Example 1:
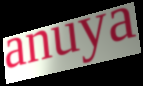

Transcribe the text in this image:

anuya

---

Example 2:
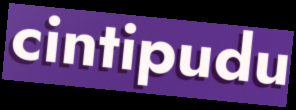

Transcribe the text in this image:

cintipudu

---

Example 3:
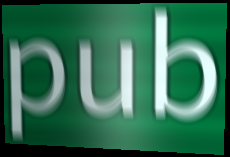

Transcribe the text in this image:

pub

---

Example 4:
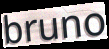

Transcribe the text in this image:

bruno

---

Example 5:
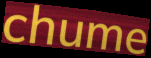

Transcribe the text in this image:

chume